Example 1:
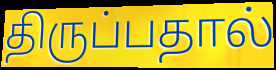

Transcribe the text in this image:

திருப்பதால்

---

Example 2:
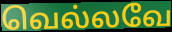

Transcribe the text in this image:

வெல்லவே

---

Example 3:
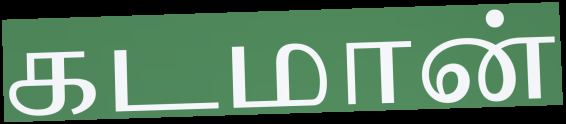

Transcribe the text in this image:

கடமான்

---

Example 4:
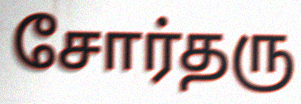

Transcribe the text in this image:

சோர்தரு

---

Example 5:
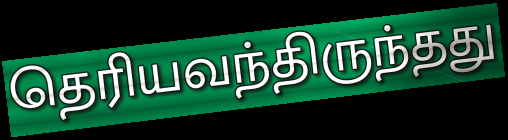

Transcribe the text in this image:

தெரியவந்திருந்தது